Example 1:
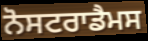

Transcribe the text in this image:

ਨੋਸਟਰਾਡੈਮਸ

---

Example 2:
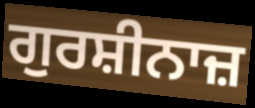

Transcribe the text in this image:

ਗੁਰਸ਼ੀਨਾਜ਼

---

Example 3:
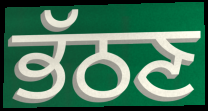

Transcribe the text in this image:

ਭੱਠਣ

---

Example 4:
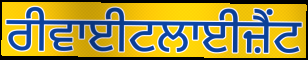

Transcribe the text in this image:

ਰੀਵਾਈਟਲਾਈਜ਼ੈਂਟ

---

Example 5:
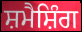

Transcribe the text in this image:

ਸ਼ਮੈਸ਼ਿੰਗ